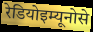
रेडियोइम्यूनोसे